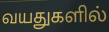
வயதுகளில்